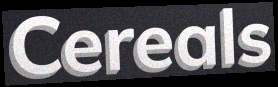
Cereals